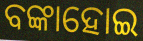
ବଙ୍କାହୋଇ